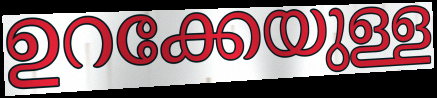
ഉറക്കേയുള്ള